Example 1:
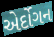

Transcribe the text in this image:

એર્દોગન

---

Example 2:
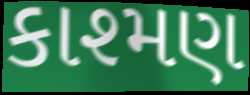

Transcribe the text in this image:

કાશ્મણ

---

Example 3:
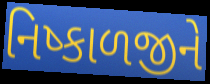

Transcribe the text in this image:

નિષ્કાળજીને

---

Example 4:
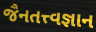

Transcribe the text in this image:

જૈનતત્ત્વજ્ઞાન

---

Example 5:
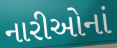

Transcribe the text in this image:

નારીઓનાં